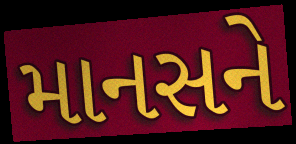
માનસને